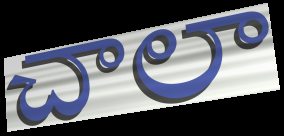
చాలా